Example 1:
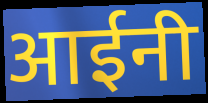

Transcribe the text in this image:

आईनी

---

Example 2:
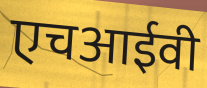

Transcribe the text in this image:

एचआईवी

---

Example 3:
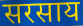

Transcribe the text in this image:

सरसाय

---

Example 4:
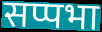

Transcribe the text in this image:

सप्पभा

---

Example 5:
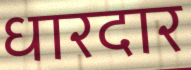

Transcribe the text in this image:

धारदार